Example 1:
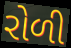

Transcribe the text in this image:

રોળી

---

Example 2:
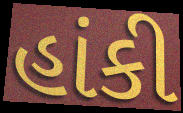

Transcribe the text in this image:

હાંકી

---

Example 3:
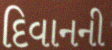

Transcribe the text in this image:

દિવાનની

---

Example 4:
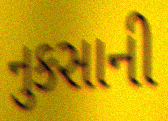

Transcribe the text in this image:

નુકસાની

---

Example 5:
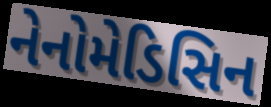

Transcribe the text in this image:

નેનોમેડિસિન